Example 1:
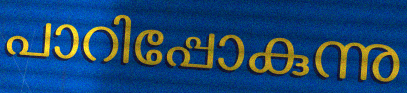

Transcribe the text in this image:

പാറിപ്പോകുന്നു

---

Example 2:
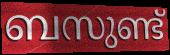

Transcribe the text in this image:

ബസുണ്ട്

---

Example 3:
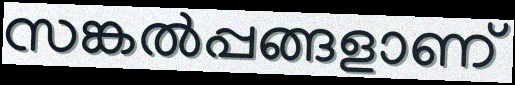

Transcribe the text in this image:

സങ്കൽപ്പങ്ങളാണ്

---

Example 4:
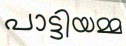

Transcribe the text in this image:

പാട്ടിയമ്മ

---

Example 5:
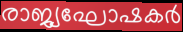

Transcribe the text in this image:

രാജ്യഘോഷകർ